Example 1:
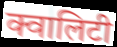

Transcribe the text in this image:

क्वालिटी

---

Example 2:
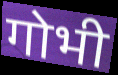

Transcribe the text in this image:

गोभी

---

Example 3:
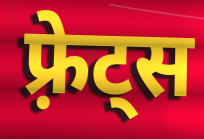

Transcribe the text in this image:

फ़्रेट्स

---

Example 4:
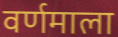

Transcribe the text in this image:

वर्णमाला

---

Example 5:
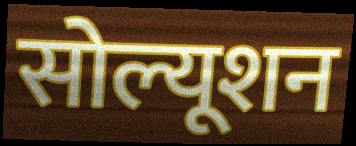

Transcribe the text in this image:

सोल्‍यूशन